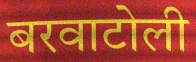
बरवाटोली